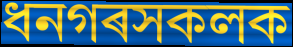
ধনগৰসকলক